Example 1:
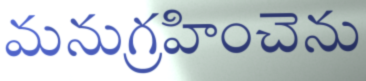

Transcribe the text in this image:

మనుగ్రహించెను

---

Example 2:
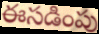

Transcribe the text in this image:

ఈసడింపు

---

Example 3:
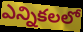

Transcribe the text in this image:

ఎన్నికలలో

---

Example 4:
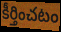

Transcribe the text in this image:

కీర్తించటం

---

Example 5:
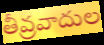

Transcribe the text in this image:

తీవ్రవాదుల